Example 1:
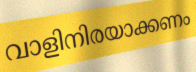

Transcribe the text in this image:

വാളിനിരയാക്കണം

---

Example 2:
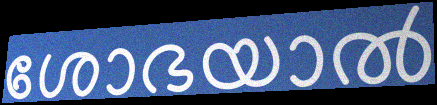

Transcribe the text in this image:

ശോഭയാൽ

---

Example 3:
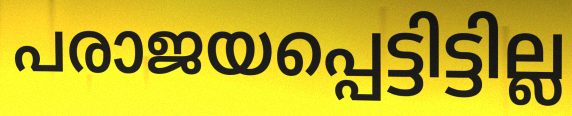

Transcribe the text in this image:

പരാജയപ്പെട്ടിട്ടില്ല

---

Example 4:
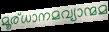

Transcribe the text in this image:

മൂര്ധാനമവ്യാന്മമ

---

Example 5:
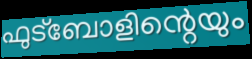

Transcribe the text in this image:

ഫുട്ബോളിന്റെയും